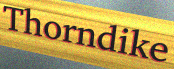
Thorndike